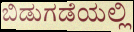
ಬಿಡುಗಡೆಯಲ್ಲಿ